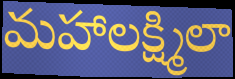
మహాలక్ష్మిలా